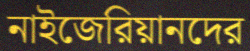
নাইজেরিয়ানদের